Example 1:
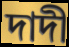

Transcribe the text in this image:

দাদী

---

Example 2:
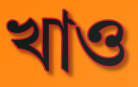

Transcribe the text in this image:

খাও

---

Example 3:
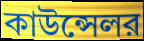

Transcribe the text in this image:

কাউন্সেলর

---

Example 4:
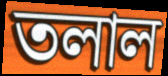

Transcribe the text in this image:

তলাল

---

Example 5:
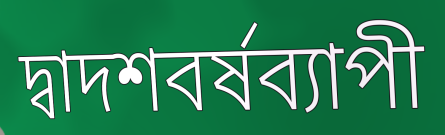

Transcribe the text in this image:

দ্বাদশবর্ষব্যাপী